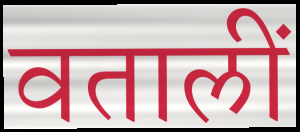
वतालीं